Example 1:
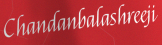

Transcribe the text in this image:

Chandanbalashreeji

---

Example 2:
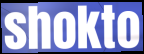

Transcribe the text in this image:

shokto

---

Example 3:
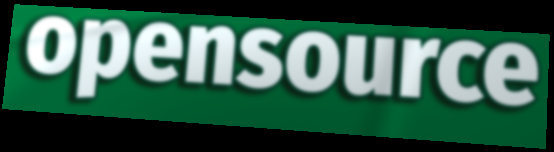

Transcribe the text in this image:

opensource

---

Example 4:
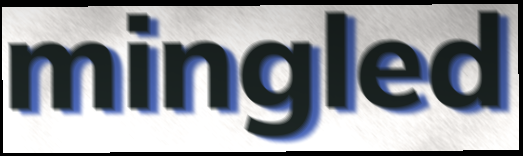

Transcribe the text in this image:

mingled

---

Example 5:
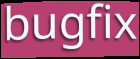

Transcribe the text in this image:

bugfix